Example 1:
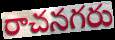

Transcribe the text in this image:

రాచనగరు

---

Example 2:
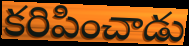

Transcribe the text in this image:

కరిపించాడు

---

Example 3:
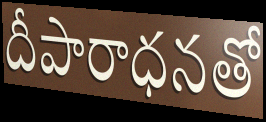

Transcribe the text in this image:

దీపారాధనతో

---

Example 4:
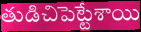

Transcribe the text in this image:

తుడిచిపెట్టేశాయి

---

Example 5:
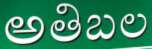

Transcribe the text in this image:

అతిబల